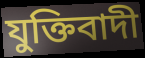
যুক্তিবাদী